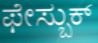
ಫೇಸ್ಬುಕ್